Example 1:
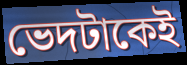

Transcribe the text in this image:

ভেদটাকেই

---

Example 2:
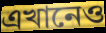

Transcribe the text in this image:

এখানেও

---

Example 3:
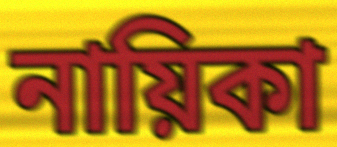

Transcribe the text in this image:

নায়িকা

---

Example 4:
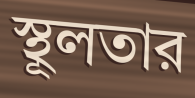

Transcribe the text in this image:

স্থূলতার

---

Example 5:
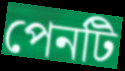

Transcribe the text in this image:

পেনটি